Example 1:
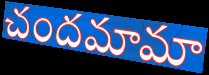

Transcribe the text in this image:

చందమామా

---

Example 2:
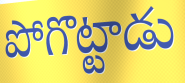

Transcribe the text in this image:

పోగొట్టాడు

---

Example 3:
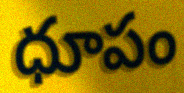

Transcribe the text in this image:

ధూపం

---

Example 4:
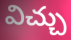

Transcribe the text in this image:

విచ్చు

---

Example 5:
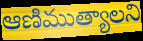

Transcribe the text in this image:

ఆణిముత్యాలని